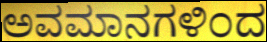
ಅವಮಾನಗಳಿಂದ